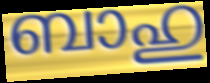
ബാഹു